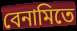
বেনামিতে